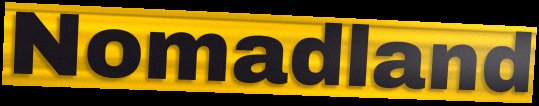
Nomadland